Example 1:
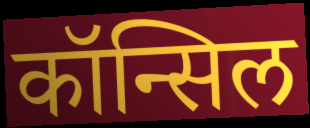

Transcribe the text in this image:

कॉन्सिल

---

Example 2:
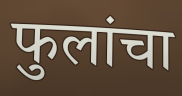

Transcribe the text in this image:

फुलांचा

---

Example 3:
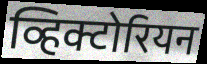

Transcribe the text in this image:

व्हिक्टोरियन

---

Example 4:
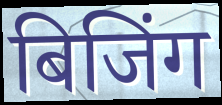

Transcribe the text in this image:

बिजिंग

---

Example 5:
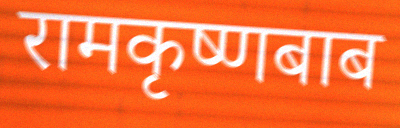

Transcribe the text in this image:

रामकृष्णबाब